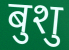
बुशु